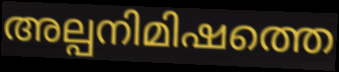
അല്പനിമിഷത്തെ